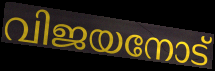
വിജയനോട്